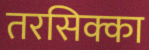
तरसिक्का